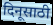
दिनूसाठी